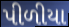
પીળીયા